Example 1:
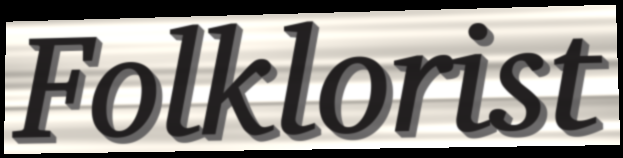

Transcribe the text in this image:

Folklorist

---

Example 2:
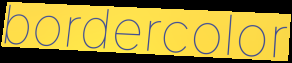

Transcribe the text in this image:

bordercolor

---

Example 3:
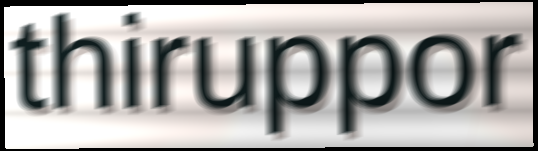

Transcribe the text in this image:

thiruppor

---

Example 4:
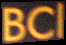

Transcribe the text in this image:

BCl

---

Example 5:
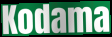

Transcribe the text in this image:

Kodama